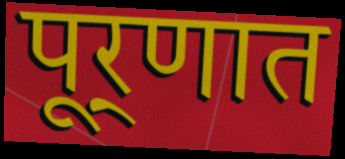
पूर्णात